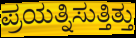
ಪ್ರಯತ್ನಿಸುತ್ತಿತ್ತು